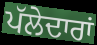
ਪੱਲੇਦਾਰਾਂ